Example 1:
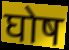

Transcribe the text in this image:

घोष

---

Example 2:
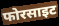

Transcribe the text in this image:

फोरसाइट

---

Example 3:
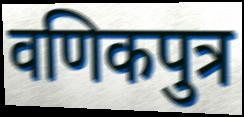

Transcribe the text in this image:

वणिकपुत्र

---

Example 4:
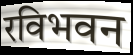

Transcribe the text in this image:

रविभवन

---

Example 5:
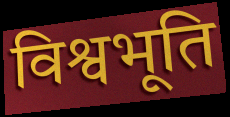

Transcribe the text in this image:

विश्वभूति